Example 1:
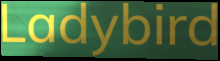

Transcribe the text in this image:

Ladybird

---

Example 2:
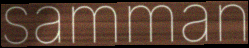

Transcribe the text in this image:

samman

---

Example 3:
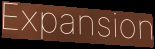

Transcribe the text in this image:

Expansion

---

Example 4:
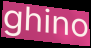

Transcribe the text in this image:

ghino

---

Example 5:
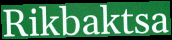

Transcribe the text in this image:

Rikbaktsa